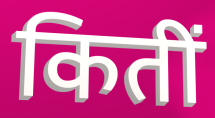
कितीं